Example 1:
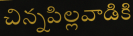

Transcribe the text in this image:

చిన్నపిల్లవాడికి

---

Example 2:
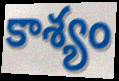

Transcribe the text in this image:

కాశ్యం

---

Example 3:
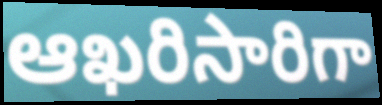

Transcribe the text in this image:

ఆఖరిసారిగా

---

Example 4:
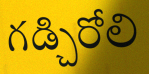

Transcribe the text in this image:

గడ్చిరోలి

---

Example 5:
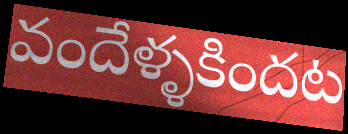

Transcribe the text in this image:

వందేళ్ళకిందట